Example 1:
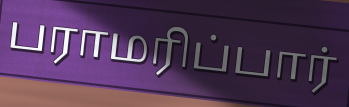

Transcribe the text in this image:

பராமரிப்பார்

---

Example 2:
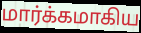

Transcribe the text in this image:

மார்க்கமாகிய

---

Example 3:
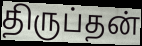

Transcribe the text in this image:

திருப்தன்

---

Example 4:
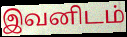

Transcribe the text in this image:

இவனிடம்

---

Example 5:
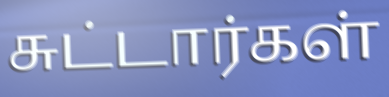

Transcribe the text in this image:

சுட்டார்கள்